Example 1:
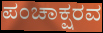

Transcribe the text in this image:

ಪಂಚಾಕ್ಷರವ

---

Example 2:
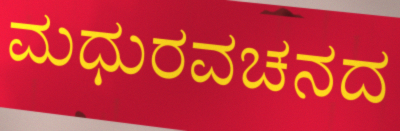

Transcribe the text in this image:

ಮಧುರವಚನದ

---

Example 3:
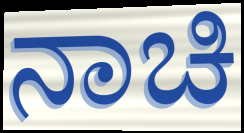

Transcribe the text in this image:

ನಾಚಿ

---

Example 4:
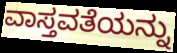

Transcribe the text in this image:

ವಾಸ್ತವತೆಯನ್ನು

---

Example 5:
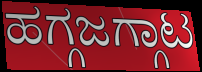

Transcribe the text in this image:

ಹಗ್ಗಜಗ್ಗಾಟ